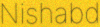
Nishabd